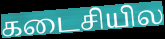
கடைசியில